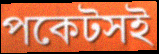
পকেটসই